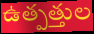
ఉత్పత్తుల